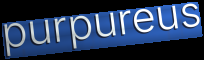
purpureus